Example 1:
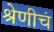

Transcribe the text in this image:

श्रेणीचं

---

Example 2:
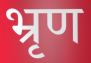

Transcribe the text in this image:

भ्रृण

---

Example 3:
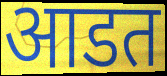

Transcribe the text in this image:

आडत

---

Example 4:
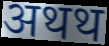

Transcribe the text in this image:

अथथ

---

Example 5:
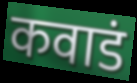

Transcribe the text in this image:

कवाडं